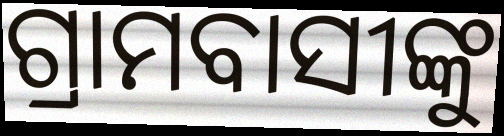
ଗ୍ରାମବାସୀଙ୍କୁ